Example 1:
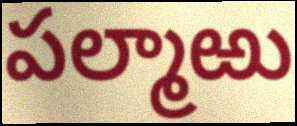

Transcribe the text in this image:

పల్మాఱు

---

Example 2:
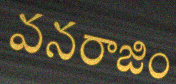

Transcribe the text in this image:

వనరాజిం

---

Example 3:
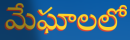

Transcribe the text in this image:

మేఘాలలో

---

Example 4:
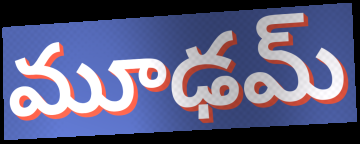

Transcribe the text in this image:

మూఢమ్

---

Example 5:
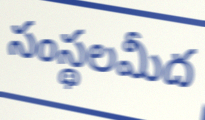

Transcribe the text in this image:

సంస్థలమీద